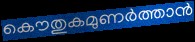
കൌതുകമുണർത്താൻ